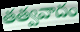
తత్వవాదం